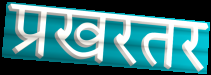
प्रखरतर